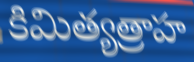
కిమిత్యత్రాహ